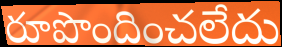
రూపొందించలేదు